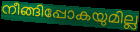
നീങ്ങിപ്പോകയുമില്ല